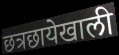
छत्रछायेखाली